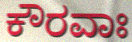
ಕೌರವಾಃ